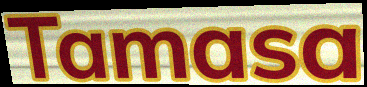
Tamasa